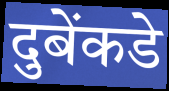
दुबेंकडे